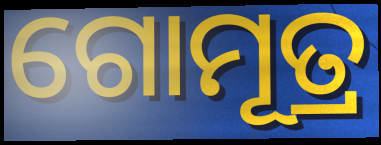
ଗୋମୂତ୍ର